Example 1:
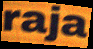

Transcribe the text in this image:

raja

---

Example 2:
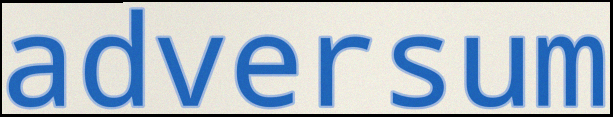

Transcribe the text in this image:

adversum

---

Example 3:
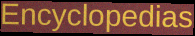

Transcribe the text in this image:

Encyclopedias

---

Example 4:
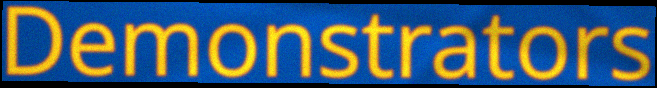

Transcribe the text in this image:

Demonstrators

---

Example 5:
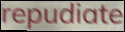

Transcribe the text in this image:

repudiate